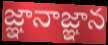
జ్ఞానాజ్ఞాన